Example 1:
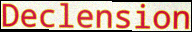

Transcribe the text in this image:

Declension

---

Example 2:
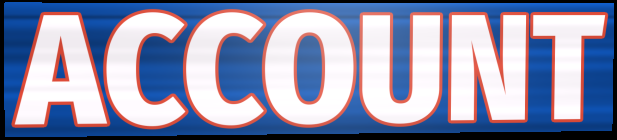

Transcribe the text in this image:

ACCOUNT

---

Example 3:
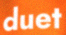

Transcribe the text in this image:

duet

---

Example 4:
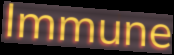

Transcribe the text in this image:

Immune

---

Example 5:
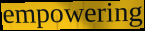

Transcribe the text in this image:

empowering